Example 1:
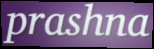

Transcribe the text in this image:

prashna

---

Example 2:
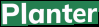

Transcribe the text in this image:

Planter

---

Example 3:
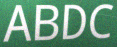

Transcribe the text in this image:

ABDC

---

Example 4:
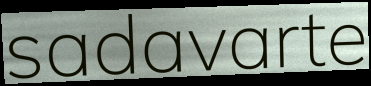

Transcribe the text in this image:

sadavarte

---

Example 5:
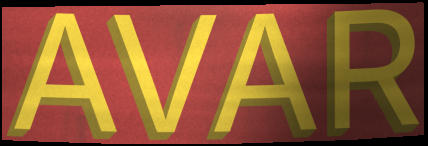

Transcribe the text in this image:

AVAR